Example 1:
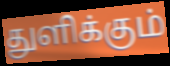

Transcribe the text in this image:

துளிக்கும்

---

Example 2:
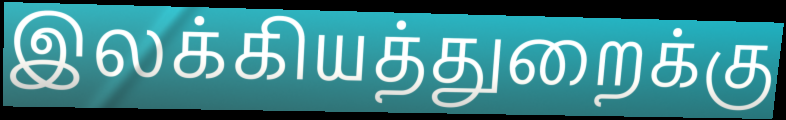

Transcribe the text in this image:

இலக்கியத்துறைக்கு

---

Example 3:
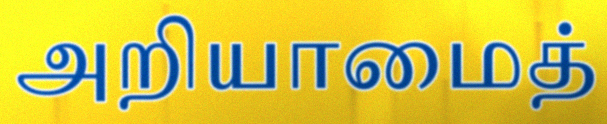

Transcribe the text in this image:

அறியாமைத்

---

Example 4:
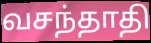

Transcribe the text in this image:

வசந்தாதி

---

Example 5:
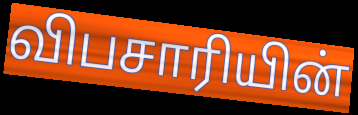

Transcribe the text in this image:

விபசாரியின்